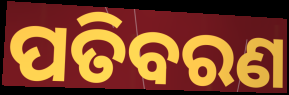
ପତିବରଣ